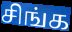
சிங்க